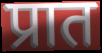
प्रात